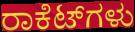
ರಾಕೆಟ್‌ಗಳು